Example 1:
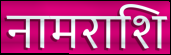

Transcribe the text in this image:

नामराशि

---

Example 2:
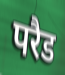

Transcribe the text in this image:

परैड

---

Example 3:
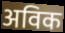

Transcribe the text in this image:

अविक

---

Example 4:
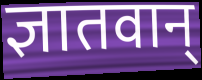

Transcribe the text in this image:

ज्ञातवान्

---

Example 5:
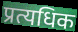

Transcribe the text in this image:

प्रत्यधिक